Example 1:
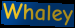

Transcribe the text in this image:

Whaley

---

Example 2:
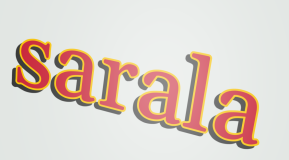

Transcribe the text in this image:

sarala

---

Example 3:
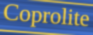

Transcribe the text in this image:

Coprolite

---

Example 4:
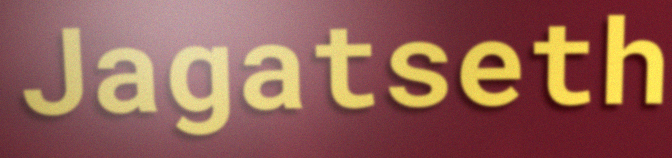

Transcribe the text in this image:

Jagatseth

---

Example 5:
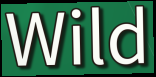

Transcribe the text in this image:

Wild